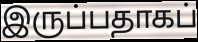
இருப்பதாகப்